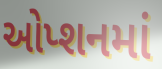
ઓપ્શનમાં